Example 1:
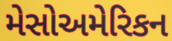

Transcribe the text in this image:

મેસોઅમેરિકન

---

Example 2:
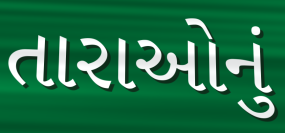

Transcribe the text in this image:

તારાઓનું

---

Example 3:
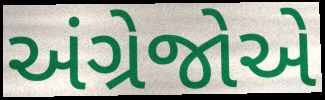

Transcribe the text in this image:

અંગ્રેજોએ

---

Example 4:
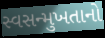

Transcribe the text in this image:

સ્વસન્મુખતાનો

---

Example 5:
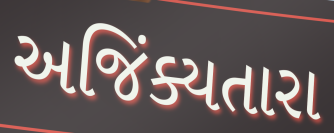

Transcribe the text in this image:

અજિંક્યતારા